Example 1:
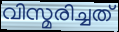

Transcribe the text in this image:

വിസ്മരിച്ചത്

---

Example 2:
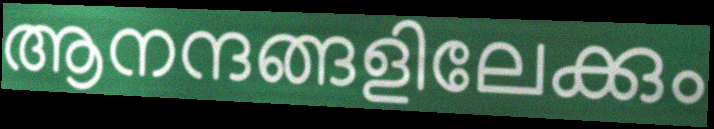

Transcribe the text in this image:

ആനന്ദങ്ങളിലേക്കും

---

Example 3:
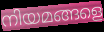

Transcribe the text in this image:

നിയമങ്ങളെ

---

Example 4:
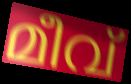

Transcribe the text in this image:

മീവ്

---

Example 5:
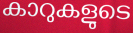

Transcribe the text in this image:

കാറുകളുടെ